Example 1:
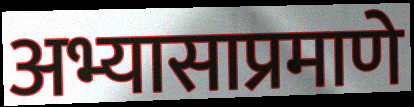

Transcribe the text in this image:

अभ्यासाप्रमाणे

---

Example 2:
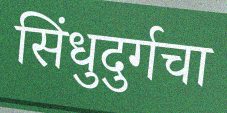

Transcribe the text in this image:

सिंधुदुर्गचा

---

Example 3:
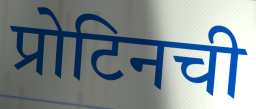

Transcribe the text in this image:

प्रोटिनची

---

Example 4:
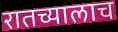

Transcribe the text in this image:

रातच्यालाच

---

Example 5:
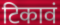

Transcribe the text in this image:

टिकावं